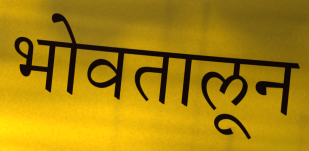
भोवतालून